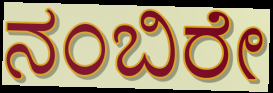
ನಂಬಿರೇ